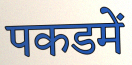
पकडमें